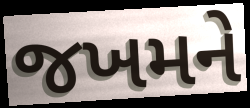
જખમને